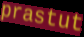
prastut